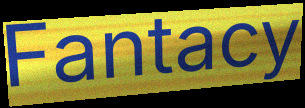
Fantacy